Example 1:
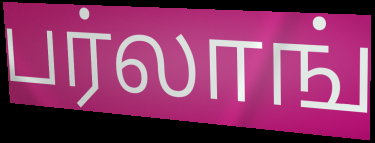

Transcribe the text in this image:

பர்லாங்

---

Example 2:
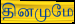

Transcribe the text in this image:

தினமுமே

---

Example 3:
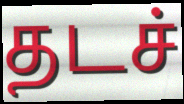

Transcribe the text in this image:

தடச்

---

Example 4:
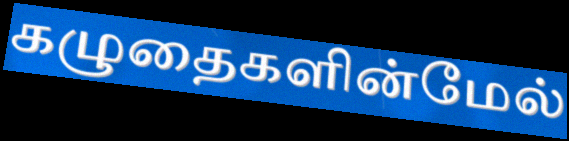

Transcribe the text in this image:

கழுதைகளின்மேல்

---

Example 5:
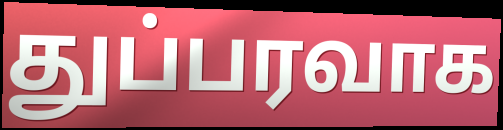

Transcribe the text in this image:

துப்பரவாக